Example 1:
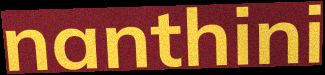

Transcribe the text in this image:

nanthini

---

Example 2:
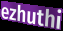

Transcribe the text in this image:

ezhuthi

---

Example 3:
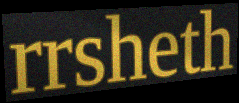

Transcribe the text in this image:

rrsheth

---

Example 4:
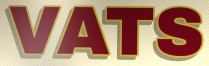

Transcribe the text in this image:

VATS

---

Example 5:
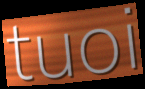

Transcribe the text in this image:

tuoi